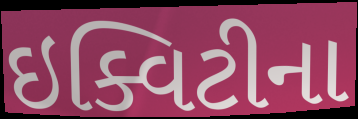
ઇક્વિટીના